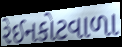
રેઈનકોટવાળા